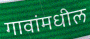
गावांमधील